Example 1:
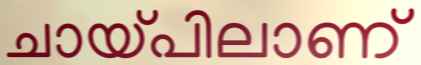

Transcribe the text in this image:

ചായ്പിലാണ്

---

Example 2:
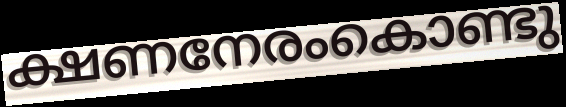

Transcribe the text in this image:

ക്ഷണനേരംകൊണ്ടു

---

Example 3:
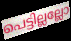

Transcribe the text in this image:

പെട്ടില്ലല്ലോ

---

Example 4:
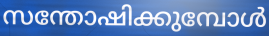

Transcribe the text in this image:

സന്തോഷിക്കുമ്പോൾ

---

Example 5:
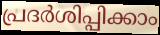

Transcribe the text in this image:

പ്രദർശിപ്പിക്കാം